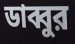
ডাব্বুর